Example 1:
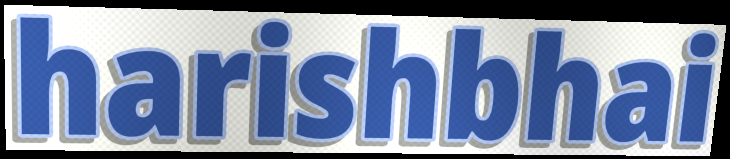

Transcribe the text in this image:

harishbhai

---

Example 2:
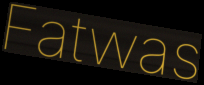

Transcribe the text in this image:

Fatwas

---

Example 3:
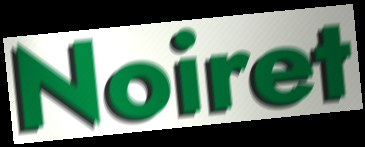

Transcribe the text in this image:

Noiret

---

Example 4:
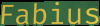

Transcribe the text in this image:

Fabius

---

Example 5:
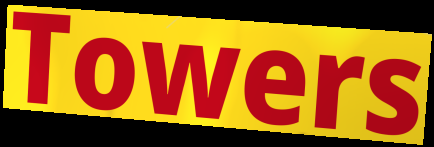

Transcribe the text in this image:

Towers